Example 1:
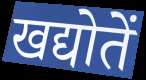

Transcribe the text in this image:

खद्योतें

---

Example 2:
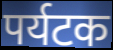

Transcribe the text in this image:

पर्यटक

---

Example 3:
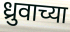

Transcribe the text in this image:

ध्रुवाच्या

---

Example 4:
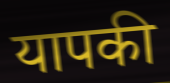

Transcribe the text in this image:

यापकी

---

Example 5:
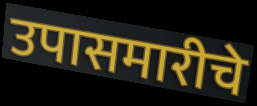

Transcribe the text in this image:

उपासमारीचे